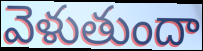
వెళుతుందా